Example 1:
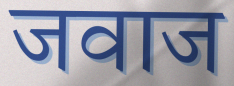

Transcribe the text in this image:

जवाज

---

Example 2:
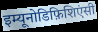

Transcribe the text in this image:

इम्यूनोडिफ़िशिएंसी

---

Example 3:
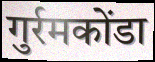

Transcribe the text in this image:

गुर्रमकोंडा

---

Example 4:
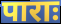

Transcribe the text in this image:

पाराः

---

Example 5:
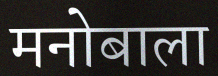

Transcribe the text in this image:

मनोबाला